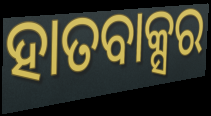
ହାତବାକ୍ସର